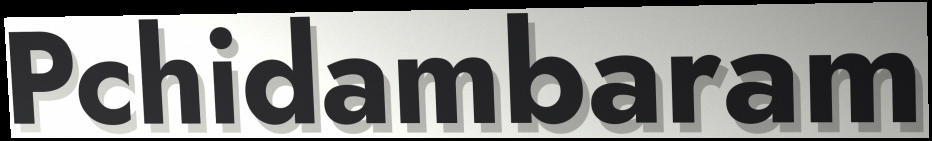
Pchidambaram